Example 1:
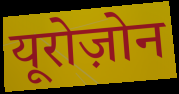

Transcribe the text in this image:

यूरोज़ोन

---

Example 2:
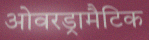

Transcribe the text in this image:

ओवरड्रामैटिक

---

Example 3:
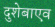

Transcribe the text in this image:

दुशेबाएव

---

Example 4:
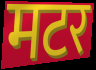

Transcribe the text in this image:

मटर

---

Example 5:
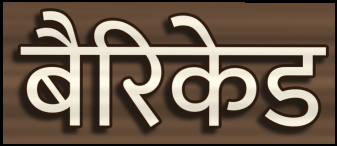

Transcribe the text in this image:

बैरिकेड